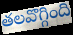
తలవొగ్గింది